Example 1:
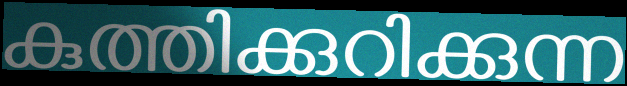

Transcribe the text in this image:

കുത്തിക്കുറിക്കുന്ന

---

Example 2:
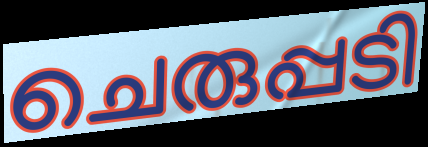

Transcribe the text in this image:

ചെരുപ്പടി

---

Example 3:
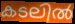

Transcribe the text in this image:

കടലിൽ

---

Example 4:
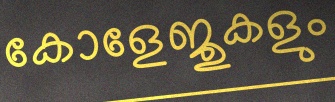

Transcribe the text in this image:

കോളേജുകളും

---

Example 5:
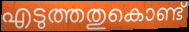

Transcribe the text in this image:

എടുത്തതുകൊണ്ട്